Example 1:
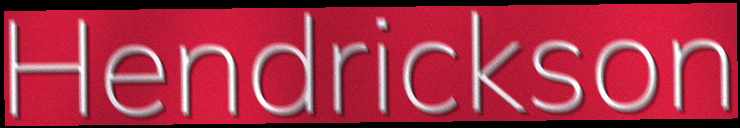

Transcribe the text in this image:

Hendrickson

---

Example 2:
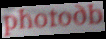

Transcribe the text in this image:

photodb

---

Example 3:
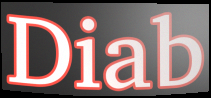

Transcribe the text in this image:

Diab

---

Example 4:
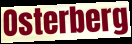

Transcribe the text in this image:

Osterberg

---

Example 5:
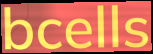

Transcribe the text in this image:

bcells